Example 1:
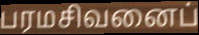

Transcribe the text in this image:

பரமசிவனைப்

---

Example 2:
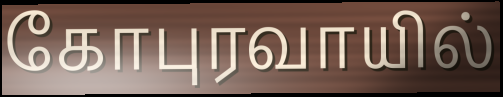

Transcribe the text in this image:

கோபுரவாயில்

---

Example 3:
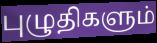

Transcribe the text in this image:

புழுதிகளும்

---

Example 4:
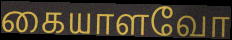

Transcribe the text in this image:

கையாளவோ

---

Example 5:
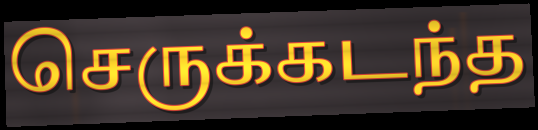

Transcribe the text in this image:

செருக்கடந்த